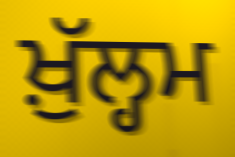
ਖ਼ੁੱਲ੍ਹਮ